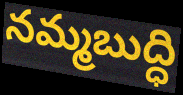
నమ్మబుద్ధి